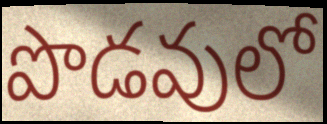
పొడవులో